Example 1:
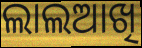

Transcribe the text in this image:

ଲାଲଆଖି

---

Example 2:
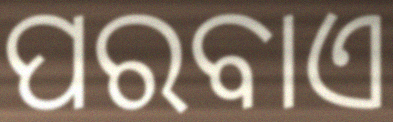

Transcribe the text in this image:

ପରବାଏ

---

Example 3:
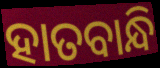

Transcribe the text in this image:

ହାତବାନ୍ଧି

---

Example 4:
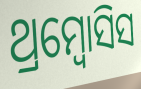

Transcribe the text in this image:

ଥ୍ରମ୍ବୋସିସ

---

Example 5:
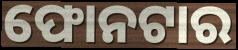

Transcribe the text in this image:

ଫୋନଟାର